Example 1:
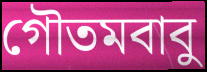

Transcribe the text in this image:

গৌতমবাবু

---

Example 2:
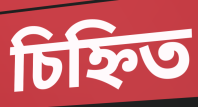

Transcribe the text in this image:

চিহ্নিত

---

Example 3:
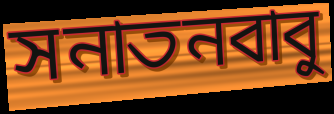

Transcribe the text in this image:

সনাতনবাবু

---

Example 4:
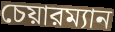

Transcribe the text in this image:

চেয়ারম্যান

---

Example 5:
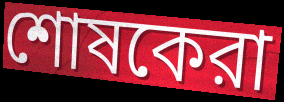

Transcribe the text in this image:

শোষকেরা